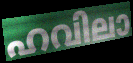
ഹവിലാ